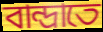
বান্দ্রাতে